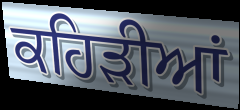
ਕਹਿੜੀਆਂ